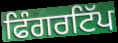
ਫਿੰਗਰਟਿੱਪ